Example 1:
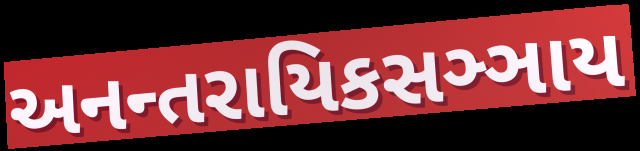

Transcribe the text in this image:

અનન્તરાયિકસઞ્ઞાય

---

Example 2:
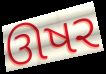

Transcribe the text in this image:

ઊષર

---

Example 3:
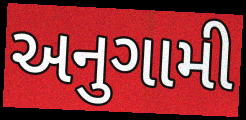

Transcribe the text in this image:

અનુગામી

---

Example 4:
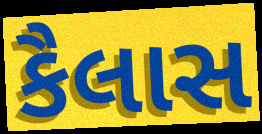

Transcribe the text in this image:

કૈલાસ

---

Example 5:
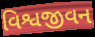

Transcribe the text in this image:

વિશ્વજીવન